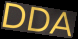
DDA